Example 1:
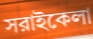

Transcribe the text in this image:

সরাইকেলা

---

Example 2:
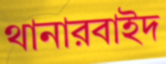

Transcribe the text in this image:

থানারবাইদ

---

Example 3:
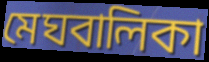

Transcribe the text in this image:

মেঘবালিকা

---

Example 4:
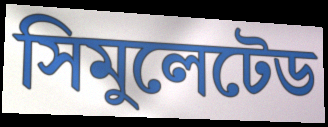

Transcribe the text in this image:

সিমুলেটেড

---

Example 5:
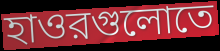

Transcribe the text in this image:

হাওরগুলোতে